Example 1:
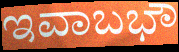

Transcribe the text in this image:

ಇವಾಬಭೌ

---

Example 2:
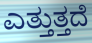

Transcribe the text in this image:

ಎತ್ತುತ್ತದೆ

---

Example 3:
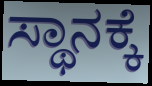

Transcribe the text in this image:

ಸ್ಥಾನಕ್ಕೆ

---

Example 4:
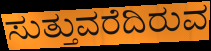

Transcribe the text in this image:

ಸುತ್ತುವರೆದಿರುವ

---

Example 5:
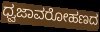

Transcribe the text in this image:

ಧ್ವಜಾವರೋಹಣದ